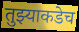
तुझ्याकडेच